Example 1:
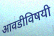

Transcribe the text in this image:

आवडीविषयी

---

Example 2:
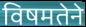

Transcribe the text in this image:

विषमतेने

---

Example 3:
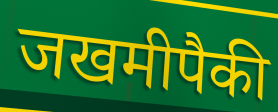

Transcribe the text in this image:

जखमीपैकी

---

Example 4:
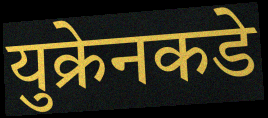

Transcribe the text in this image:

युक्रेनकडे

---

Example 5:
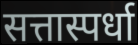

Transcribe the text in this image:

सत्तास्पर्धा